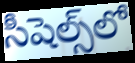
సీషెల్స్‌లో